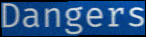
Dangers